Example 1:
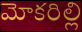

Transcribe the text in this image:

మోకరిల్లి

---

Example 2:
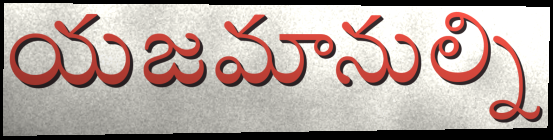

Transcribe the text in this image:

యజమానుల్ని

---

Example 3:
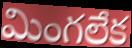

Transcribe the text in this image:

మింగలేక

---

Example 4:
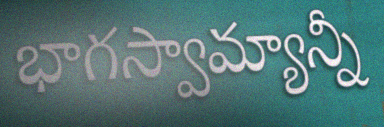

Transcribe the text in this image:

భాగస్వామ్యాన్నీ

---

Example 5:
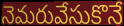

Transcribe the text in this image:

నెమరువేసుకొనే